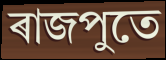
ৰাজপুতে